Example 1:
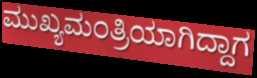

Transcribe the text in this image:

ಮುಖ್ಯಮಂತ್ರಿಯಾಗಿದ್ದಾಗ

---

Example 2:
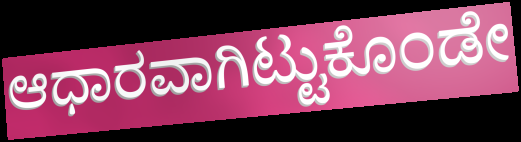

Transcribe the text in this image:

ಆಧಾರವಾಗಿಟ್ಟುಕೊಂಡೇ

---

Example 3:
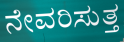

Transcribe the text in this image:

ನೇವರಿಸುತ್ತ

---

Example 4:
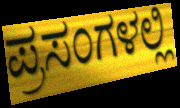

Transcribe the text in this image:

ಪ್ರಸಂಗಳಲ್ಲಿ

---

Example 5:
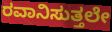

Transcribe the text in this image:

ರವಾನಿಸುತ್ತಲೇ